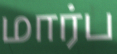
மார்ப